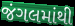
જંગલમાંથી